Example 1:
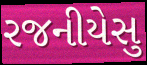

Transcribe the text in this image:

રજનીયેસુ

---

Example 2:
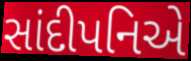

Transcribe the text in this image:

સાંદીપનિએ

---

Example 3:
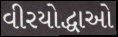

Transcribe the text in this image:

વીરયોદ્ધાઓ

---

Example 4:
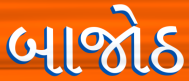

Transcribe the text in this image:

બાજોઠ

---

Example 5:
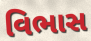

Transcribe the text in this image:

વિભાસ